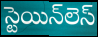
స్టెయిన్‌లెస్